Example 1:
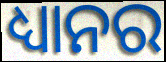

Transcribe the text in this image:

ଧ୍ୟାନର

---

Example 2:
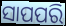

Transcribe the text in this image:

ସାପପରି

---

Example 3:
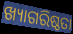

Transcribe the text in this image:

ଖ୍ୟାଗରିଷ୍ଠତା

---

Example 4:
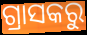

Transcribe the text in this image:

ଗ୍ରାସକରୁ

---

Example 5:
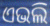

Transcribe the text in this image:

ଏଭଲି